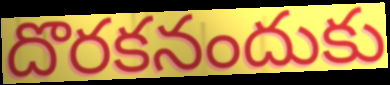
దొరకనందుకు